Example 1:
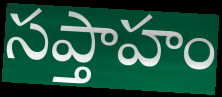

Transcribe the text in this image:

సప్తాహం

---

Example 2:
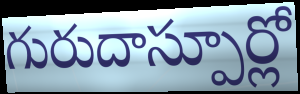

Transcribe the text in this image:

గురుదాస్పూర్లో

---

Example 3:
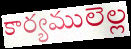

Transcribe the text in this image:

కార్యములెల్ల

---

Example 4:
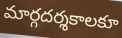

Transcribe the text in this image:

మార్గదర్శకాలకూ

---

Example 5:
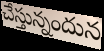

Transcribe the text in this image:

చేస్తున్నందున